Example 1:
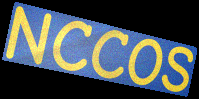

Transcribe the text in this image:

NCCOS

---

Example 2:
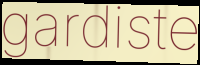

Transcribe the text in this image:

gardiste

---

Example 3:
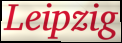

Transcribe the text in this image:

Leipzig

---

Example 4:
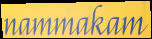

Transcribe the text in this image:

nammakam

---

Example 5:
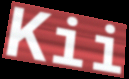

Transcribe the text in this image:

Kii